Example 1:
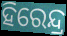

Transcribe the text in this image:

ହିରେନ୍ଦ୍ର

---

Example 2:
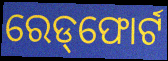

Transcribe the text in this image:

ରେଡ୍‌ଫୋର୍ଟ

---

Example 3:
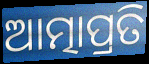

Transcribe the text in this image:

ଆତ୍ମାପ୍ରତି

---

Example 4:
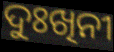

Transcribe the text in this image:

ଦୁଃଖିନୀ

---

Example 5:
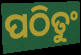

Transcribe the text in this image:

ପଠିତୁଂ